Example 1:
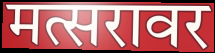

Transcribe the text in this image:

मत्सरावर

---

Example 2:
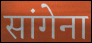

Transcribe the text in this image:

सांगेना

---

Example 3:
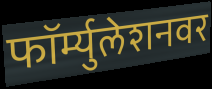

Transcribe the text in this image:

फॉर्म्युलेशनवर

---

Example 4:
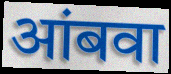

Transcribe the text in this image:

आंबवा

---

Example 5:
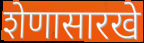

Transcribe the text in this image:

शेणासारखे